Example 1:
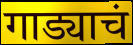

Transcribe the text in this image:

गाड्याचं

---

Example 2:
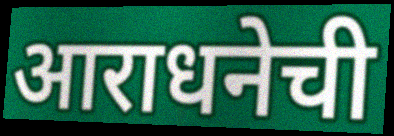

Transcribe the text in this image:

आराधनेची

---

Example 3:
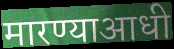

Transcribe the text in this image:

मारण्याआधी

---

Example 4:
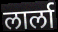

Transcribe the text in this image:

लार्ला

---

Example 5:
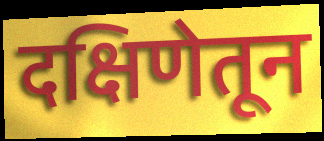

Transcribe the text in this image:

दक्षिणेतून